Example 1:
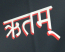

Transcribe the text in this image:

ऋतम्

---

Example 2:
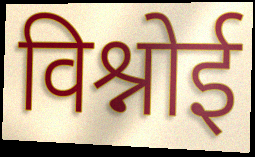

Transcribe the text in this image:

विश्नोई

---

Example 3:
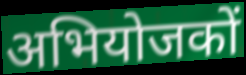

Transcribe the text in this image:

अभियोजकों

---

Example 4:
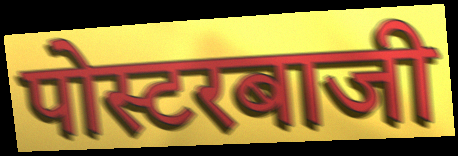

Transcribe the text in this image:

पोस्टरबाजी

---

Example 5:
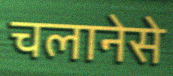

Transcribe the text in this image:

चलानेसे